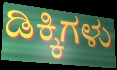
ಡಿಕ್ಕಿಗಳು